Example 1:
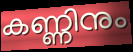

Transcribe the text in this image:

കണ്ണിനും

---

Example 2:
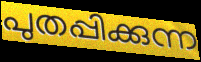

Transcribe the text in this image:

പുതപ്പിക്കുന്ന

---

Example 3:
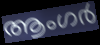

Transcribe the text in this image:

ആംഗർ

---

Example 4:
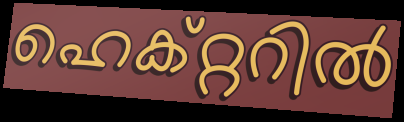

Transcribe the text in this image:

ഹെക്റ്ററിൽ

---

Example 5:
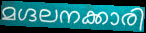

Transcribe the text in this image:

മഗ്ദലനക്കാരി